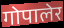
गोपालेर